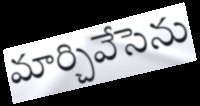
మార్చివేసెను